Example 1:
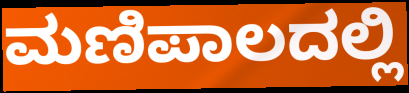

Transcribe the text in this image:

ಮಣಿಪಾಲದಲ್ಲಿ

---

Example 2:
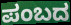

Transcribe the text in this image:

ಪಂಬದ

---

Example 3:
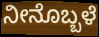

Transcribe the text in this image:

ನೀನೊಬ್ಬಳೆ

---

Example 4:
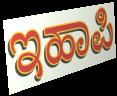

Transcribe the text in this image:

ಇಹಾಪಿ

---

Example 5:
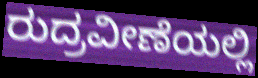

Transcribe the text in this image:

ರುದ್ರವೀಣೆಯಲ್ಲಿ